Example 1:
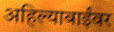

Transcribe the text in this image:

अहिल्याबाईंवर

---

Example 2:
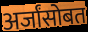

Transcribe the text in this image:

अर्जांसोबत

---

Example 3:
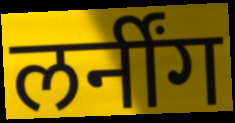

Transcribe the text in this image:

लर्नींग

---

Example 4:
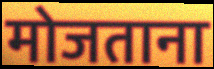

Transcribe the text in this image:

मोजताना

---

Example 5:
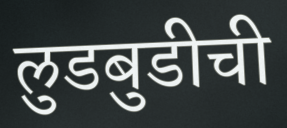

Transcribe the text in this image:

लुडबुडीची